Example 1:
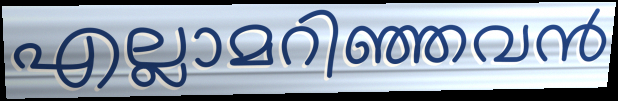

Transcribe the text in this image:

എല്ലാമറിഞ്ഞവൻ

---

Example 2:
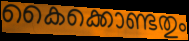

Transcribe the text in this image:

കൈക്കൊണ്ടതും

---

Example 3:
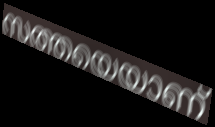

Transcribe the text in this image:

സത്തയെയാണ്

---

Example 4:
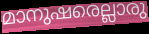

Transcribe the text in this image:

മാനുഷരെല്ലാരു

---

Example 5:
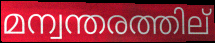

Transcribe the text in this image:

മന്വന്തരത്തില്